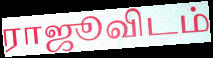
ராஜூவிடம்